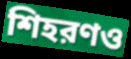
শিহরণও